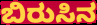
ಬಿರುಸಿನ